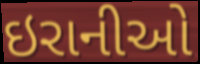
ઇરાનીઓ